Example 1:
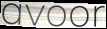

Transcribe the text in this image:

avoor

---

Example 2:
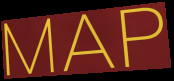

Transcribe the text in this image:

MAP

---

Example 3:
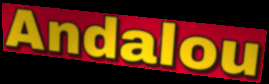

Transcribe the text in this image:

Andalou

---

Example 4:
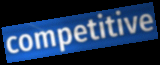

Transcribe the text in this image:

competitive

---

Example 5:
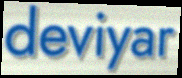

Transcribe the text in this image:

deviyar